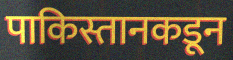
पाकिस्तानकडून